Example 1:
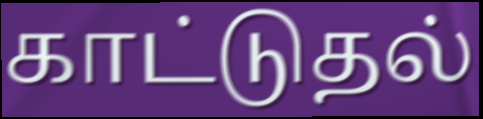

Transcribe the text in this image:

காட்டுதல்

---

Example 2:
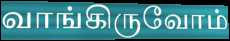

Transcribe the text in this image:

வாங்கிருவோம்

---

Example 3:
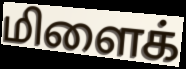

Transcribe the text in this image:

மிளைக்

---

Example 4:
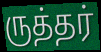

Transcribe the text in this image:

ருத்தர்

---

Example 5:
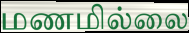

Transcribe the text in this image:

மணமில்லை